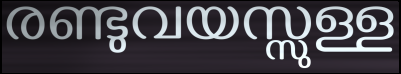
രണ്ടുവയസ്സുള്ള